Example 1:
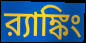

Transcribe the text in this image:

র‍্যাঙ্কিং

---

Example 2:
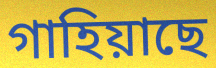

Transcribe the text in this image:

গাহিয়াছে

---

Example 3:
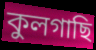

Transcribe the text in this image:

কুলগাছি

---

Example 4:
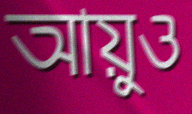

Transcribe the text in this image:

আয়ুও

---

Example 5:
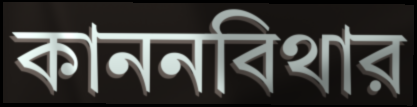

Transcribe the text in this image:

কাননবিথার